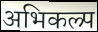
अभिकल्प